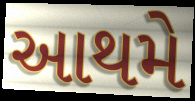
આથમે